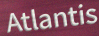
Atlantis